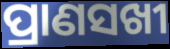
ପ୍ରାଣସଖୀ